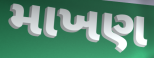
માખણ